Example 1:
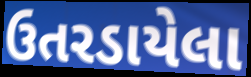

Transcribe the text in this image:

ઉતરડાયેલા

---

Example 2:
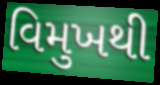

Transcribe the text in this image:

વિમુખથી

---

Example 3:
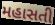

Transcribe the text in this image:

મહાસતી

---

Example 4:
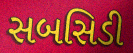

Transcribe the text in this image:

સબસિડી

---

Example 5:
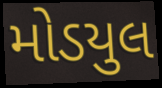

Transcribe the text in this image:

મોડયુલ